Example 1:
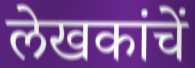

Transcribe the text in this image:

लेखकांचें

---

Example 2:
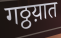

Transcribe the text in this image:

गठ्ठय़ात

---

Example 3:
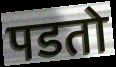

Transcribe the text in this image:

पडतो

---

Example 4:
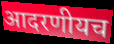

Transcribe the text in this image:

आदरणीयच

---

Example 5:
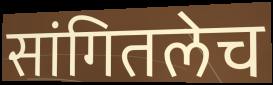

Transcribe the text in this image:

सांगितलेच